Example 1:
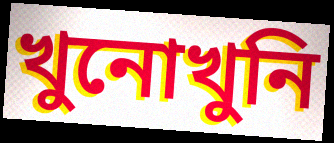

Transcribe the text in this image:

খুনোখুনি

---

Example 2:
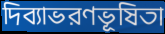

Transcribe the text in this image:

দিব্যাভরণভূষিতা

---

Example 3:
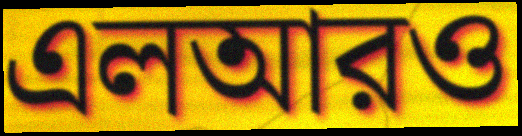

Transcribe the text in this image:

এলআরও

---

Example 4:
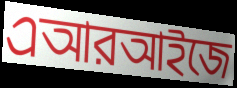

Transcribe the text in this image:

এআরআইজে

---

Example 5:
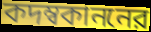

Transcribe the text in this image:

কদম্বকাননের